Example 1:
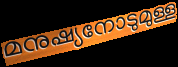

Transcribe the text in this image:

മനുഷ്യനോടുമുള്ള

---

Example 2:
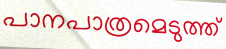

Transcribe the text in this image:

പാനപാത്രമെടുത്ത്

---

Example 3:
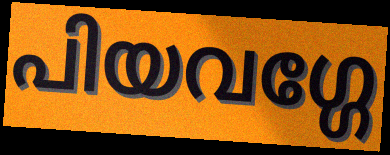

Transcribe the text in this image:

പിയവഗ്ഗേ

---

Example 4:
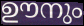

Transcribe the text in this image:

ഊനും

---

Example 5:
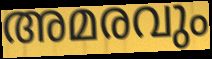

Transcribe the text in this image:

അമരവും